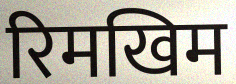
रिमखिम